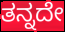
ತನ್ನದೇ